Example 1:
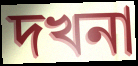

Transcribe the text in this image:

দখনা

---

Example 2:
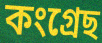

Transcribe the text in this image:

কংগ্ৰেছ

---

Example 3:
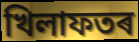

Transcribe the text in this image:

খিলাফতৰ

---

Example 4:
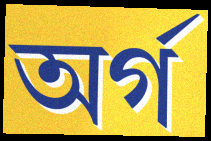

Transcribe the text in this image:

অৰ্গ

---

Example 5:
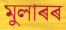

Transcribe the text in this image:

মুলাৰৰ